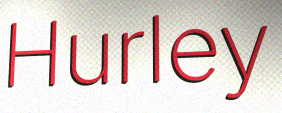
Hurley